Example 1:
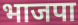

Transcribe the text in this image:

भाजपा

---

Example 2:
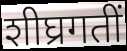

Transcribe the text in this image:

शीघ्रगतीं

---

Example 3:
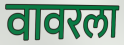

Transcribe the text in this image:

वावरला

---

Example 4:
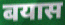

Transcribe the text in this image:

बयास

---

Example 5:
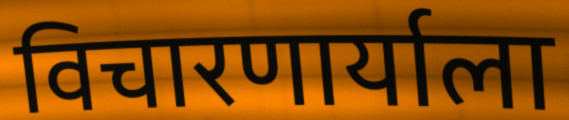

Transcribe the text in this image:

विचारणार्याला